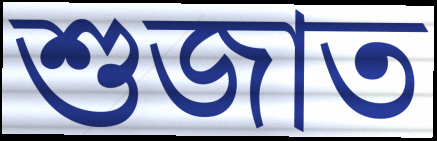
শুজাত